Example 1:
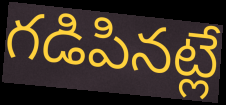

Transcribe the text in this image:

గడిపినట్లే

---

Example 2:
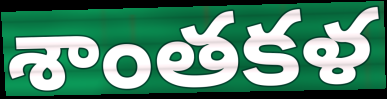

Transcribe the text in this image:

శాంతకళ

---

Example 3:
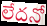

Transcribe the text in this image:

లేదనో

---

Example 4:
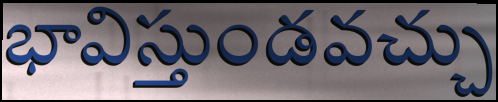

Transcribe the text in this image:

భావిస్తుండవచ్చు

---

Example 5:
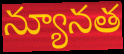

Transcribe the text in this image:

న్యూనత